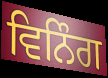
ਵਿਨਿੰਗ